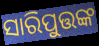
ସାରିପୁତ୍ତଙ୍କ